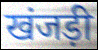
खंजड़ी